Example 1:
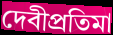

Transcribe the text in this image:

দেবীপ্রতিমা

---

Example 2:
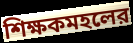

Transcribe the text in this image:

শিক্ষকমহলের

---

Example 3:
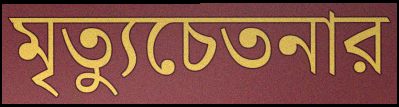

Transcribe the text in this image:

মৃত্যুচেতনার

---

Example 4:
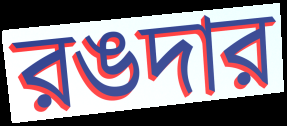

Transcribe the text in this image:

রঙদার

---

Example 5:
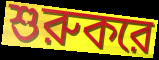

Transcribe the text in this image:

শুরুকরে